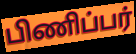
பிணிப்பர்